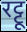
रट्टू